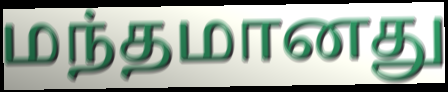
மந்தமானது